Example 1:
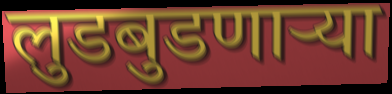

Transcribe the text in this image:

लुडबुडणाऱ्या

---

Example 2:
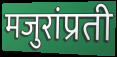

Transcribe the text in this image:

मजुरांप्रती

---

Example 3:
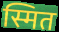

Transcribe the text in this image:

स्मित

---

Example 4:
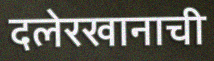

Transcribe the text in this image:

दलेरखानाची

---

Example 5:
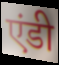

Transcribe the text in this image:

एंडी